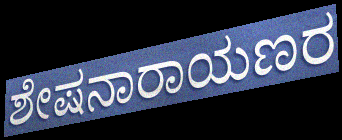
ಶೇಷನಾರಾಯಣರ